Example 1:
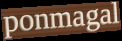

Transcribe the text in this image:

ponmagal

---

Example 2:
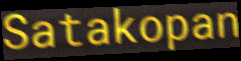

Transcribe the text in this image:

Satakopan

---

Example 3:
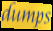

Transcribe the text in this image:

dumps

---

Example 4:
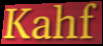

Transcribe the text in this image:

Kahf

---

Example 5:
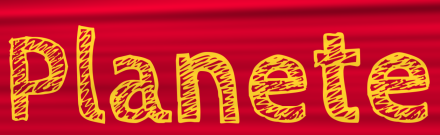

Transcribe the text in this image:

Planete